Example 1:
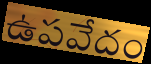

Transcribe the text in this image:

ఉపవేదం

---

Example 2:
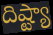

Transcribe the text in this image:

దిష్ట్యా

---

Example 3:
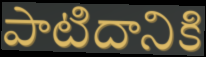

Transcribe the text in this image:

పాటిదానికి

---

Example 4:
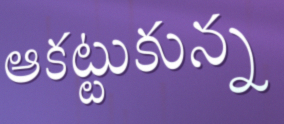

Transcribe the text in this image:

ఆకట్టుకున్న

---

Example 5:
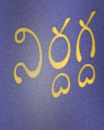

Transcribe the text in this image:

నిర్దగ్ద